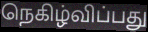
நெகிழ்விப்பது